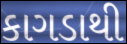
કાગડાથી